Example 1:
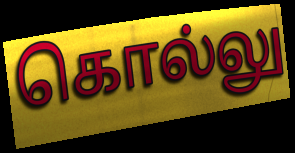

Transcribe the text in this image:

கொல்லு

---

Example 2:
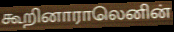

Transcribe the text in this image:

கூறினாராலெனின்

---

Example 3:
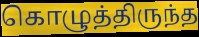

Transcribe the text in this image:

கொழுத்திருந்த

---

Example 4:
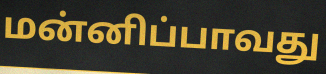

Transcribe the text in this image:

மன்னிப்பாவது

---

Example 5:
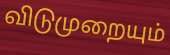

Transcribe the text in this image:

விடுமுறையும்